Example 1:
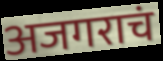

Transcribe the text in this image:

अजगराचं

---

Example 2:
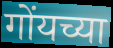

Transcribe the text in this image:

गोंयच्या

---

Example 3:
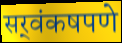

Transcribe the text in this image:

सर्वंकषपणे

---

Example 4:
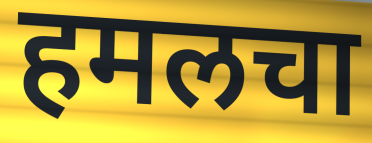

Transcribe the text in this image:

हमलचा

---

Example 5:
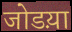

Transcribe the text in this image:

जोडय़ा